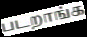
படறாங்க